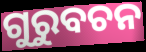
ଗୁରୁବଚନ